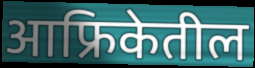
आफ्रिकेतील